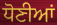
ਧੋਣੀਆਂ